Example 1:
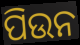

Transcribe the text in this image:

ପିଉନ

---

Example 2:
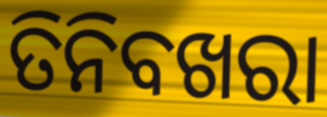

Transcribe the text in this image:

ତିନିବଖରା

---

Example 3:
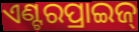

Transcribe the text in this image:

ଏଣ୍ଟରପ୍ରାଇଜ୍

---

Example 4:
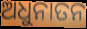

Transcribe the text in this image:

ଅଧୁନାତନ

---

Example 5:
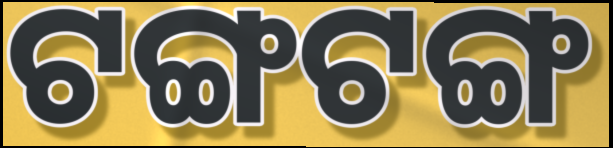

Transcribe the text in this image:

ଟଙ୍ଗଟଙ୍ଗ